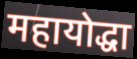
महायोद्धा